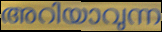
അറിയാവുന്ന